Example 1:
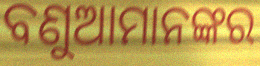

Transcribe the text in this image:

ବଣୁଆମାନଙ୍କର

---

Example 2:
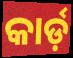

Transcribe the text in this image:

କାର୍ଡ଼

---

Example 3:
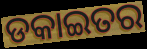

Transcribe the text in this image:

ଡକାଇତର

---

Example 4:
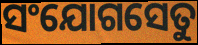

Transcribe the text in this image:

ସଂଯୋଗସେତୁ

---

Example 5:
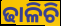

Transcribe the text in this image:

ଢାଳିଚି